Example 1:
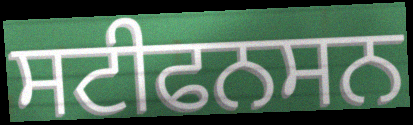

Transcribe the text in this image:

ਸਟੀਫਨਸਨ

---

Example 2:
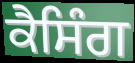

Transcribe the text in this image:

ਕੈਸਿੰਗ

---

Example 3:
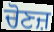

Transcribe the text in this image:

ਚੋਣਜ਼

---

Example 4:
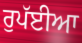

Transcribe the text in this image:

ਰੁਪੱਈਆ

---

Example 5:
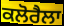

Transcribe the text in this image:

ਕਲੋਰੈਲਾ